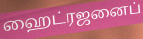
ஹைட்ரஜனைப்